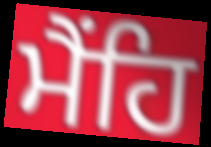
ਮੈਂਹਿ